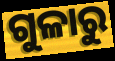
ଗୁଳାରୁ